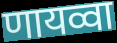
णायव्वा